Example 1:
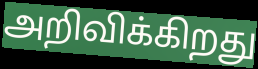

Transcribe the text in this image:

அறிவிக்கிறது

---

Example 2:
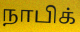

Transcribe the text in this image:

நாபிக்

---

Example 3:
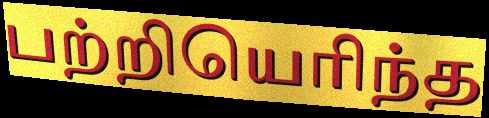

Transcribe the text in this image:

பற்றியெரிந்த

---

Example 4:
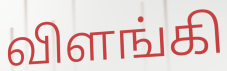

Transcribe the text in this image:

விளங்கி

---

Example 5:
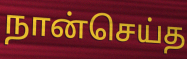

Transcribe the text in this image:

நான்செய்த